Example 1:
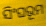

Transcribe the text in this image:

ସିଂଘଭୂମ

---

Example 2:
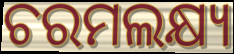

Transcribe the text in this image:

ଚରମଲକ୍ଷ୍ୟ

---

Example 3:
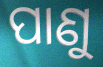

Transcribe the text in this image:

ପାଣୁ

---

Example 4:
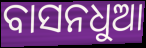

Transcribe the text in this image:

ବାସନଧୁଆ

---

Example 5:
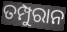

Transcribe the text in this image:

ତମ୍ପୁରାନ